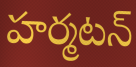
హర్మటన్